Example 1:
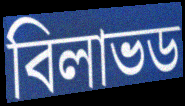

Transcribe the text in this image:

বিলাভড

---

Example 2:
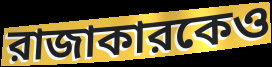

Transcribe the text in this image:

রাজাকারকেও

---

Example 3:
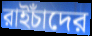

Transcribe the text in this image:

রাইচাঁদের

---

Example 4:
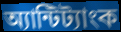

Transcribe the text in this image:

অ্যান্টিট্যাংক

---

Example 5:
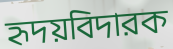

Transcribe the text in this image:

হৃদয়বিদারক